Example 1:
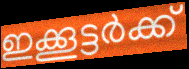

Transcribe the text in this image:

ഇക്കൂട്ടർക്ക്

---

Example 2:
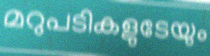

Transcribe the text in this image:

മറുപടികളുടേയും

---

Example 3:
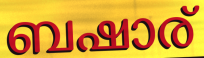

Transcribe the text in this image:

ബഷാര്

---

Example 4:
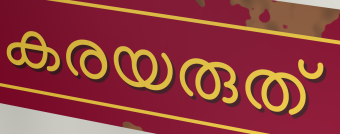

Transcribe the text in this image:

കരയരുത്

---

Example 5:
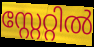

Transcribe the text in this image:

സ്റ്റേറ്റിൽ